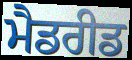
ਮੈਡਰੀਡ